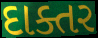
દાક્તર